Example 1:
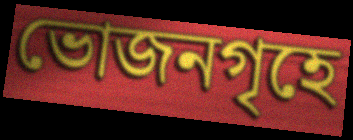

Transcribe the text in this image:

ভোজনগৃহে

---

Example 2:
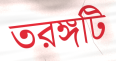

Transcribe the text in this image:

তরঙ্গটি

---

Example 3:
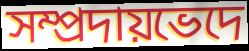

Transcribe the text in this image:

সম্প্রদায়ভেদে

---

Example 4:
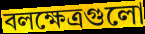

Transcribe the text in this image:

বলক্ষেত্রগুলো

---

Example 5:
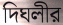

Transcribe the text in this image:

দিঘলীর